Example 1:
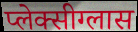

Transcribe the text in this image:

प्लेक्सीग्लास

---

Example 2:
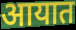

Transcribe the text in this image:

आयात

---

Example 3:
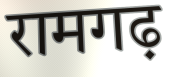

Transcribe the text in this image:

रामगढ़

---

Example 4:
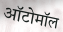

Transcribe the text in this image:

ऑटोमॉल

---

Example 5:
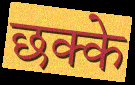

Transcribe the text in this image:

छक्के